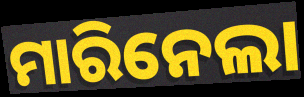
ମାରିନେଲା